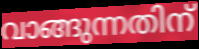
വാങ്ങുന്നതിന്